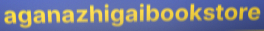
aganazhigaibookstore